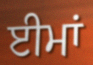
ਈਮਾਂ